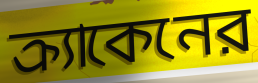
ক্র্যাকেনের